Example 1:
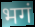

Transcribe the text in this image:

भगं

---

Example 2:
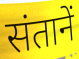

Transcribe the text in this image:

संतानें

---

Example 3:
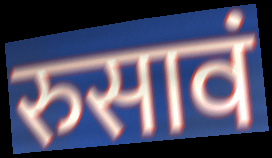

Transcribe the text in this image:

रुसावं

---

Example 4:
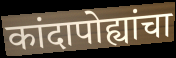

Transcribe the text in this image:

कांदापोह्यांचा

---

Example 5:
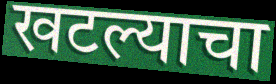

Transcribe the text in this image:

खटल्याचा